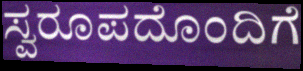
ಸ್ವರೂಪದೊಂದಿಗೆ